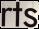
rts